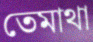
তেমাথা